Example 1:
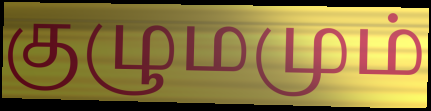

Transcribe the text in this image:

குழுமமும்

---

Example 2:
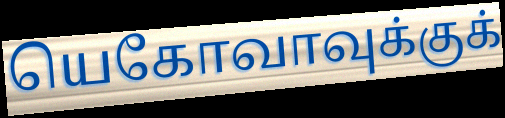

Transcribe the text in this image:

யெகோவாவுக்குக்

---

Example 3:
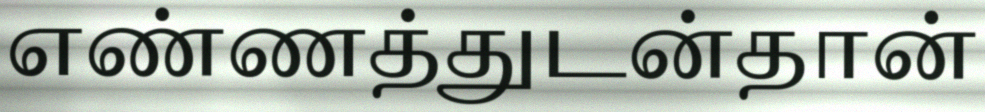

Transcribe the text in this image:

எண்ணத்துடன்தான்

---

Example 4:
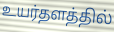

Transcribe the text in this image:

உயர்தளத்தில்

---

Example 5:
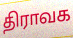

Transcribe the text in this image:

திராவக